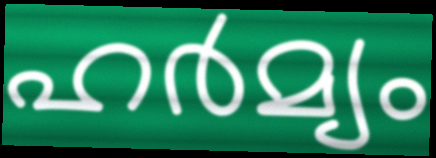
ഹർമ്യം